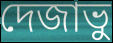
দেজাভু